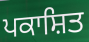
ਪਕਾਸ਼ਿਤ